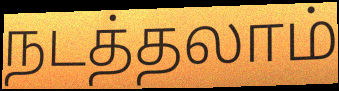
நடத்தலாம்